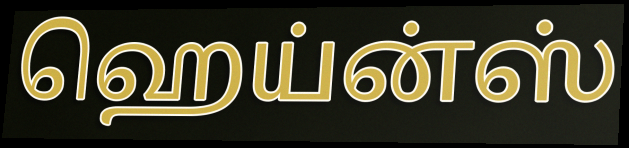
ஹெய்ன்ஸ்